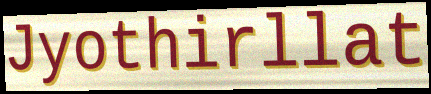
Jyothirllat